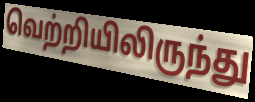
வெற்றியிலிருந்து